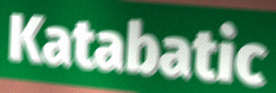
Katabatic